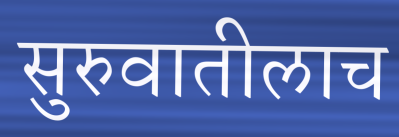
सुरुवातीलाच